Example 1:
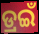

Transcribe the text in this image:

ଡ୍ରଇଁ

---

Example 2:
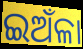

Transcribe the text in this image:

ଇଅଁଳା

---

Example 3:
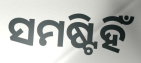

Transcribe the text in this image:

ସମଷ୍ଟିହିଁ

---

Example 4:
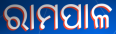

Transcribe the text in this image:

ରାମପାଳ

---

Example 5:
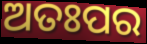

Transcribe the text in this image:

ଅତଃପର